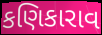
કણિકારાવ